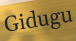
Gidugu